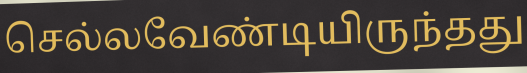
செல்லவேண்டியிருந்தது